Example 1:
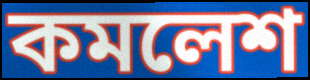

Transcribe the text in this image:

কমলেশ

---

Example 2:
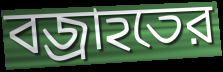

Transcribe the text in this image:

বজ্রাহতের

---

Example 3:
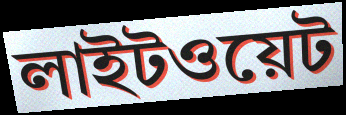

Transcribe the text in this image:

লাইটওয়েট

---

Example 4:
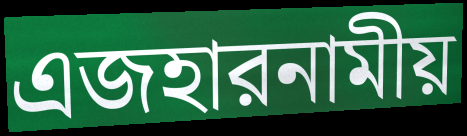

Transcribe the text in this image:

এজহারনামীয়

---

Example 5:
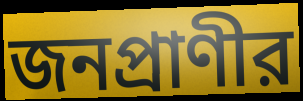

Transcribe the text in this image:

জনপ্রাণীর